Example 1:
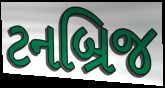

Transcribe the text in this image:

ટનબ્રિજ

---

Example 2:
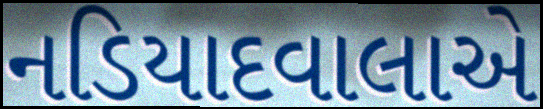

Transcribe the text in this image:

નડિયાદવાલાએ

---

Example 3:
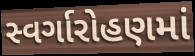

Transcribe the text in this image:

સ્વર્ગારોહણમાં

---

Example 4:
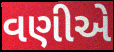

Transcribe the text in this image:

વણીએ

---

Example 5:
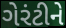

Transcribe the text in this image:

ગેરંટીને